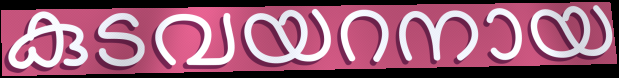
കുടവയറനായ